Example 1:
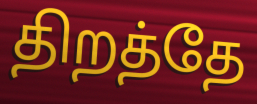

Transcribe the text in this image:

திறத்தே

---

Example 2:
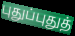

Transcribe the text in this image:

புதுப்புதுத்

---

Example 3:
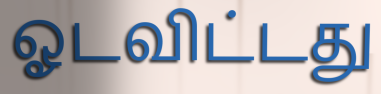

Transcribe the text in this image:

ஓடவிட்டது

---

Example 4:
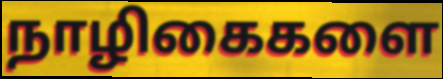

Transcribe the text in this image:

நாழிகைகளை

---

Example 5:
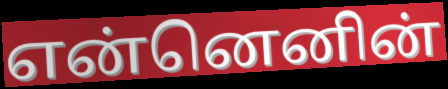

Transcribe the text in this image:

என்னெனின்